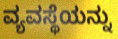
ವ್ಯವಸ್ಥೆಯನ್ನು